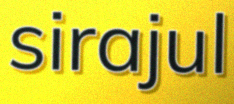
sirajul